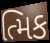
ત્મિક